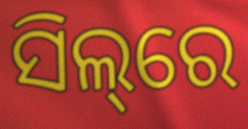
ସିଲ୍‌ରେ